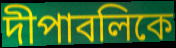
দীপাবলিকে